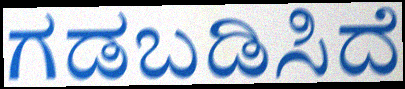
ಗಡಬಡಿಸಿದೆ